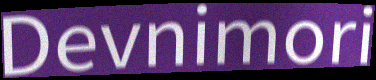
Devnimori